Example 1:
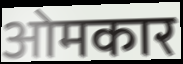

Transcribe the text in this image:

ओमकार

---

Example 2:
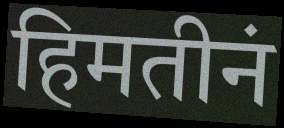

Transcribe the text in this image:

हिमतीनं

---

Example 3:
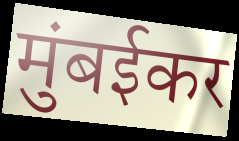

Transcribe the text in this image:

मुंबईकर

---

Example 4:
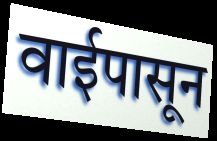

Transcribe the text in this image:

वाईपासून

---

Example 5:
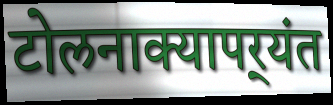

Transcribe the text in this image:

टोलनाक्यापर्यंत